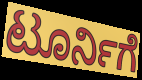
ಟೂರ್ನಿಗೆ